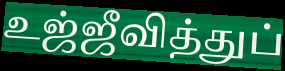
உஜ்ஜீவித்துப்